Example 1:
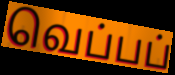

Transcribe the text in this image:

வெப்பப்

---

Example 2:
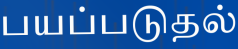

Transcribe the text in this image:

பயப்படுதல்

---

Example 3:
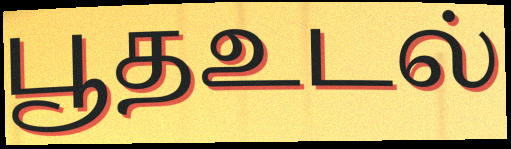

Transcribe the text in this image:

பூதஉடல்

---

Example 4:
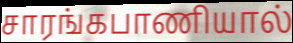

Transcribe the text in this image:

சாரங்கபாணியால்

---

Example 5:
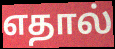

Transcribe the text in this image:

எதால்